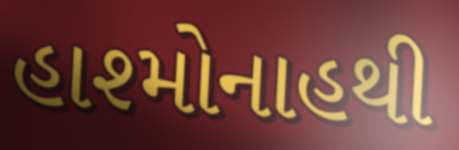
હાશ્મોનાહથી